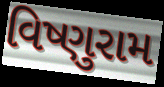
વિષ્ણુરામ